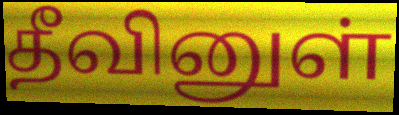
தீவினுள்